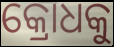
କ୍ରୋଧକୁ